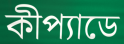
কীপ্যাডে